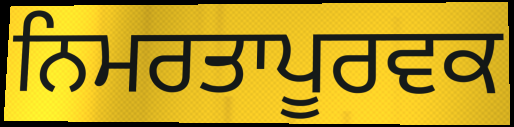
ਨਿਮਰਤਾਪੂਰਵਕ